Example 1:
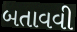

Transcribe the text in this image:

બતાવવી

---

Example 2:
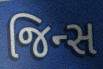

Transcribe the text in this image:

જિન્સ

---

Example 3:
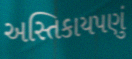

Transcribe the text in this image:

અસ્તિકાયપણું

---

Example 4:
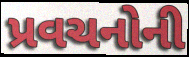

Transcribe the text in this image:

પ્રવચનોની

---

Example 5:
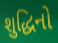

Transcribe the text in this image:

શુદ્ધિનો